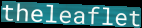
theleaflet